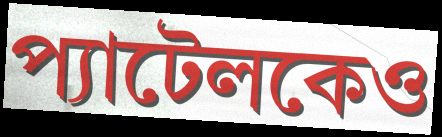
প্যাটেলকেও